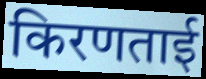
किरणताई